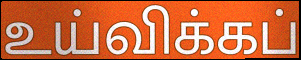
உய்விக்கப்